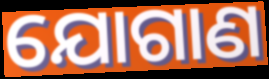
ଯୋଗାଣ